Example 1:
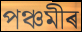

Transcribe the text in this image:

পঞ্চমীৰ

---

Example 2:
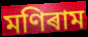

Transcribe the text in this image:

মণিৰাম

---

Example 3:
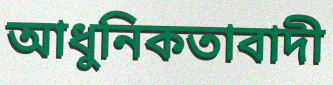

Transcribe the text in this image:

আধুনিকতাবাদী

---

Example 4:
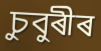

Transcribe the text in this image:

চুবুৰীৰ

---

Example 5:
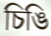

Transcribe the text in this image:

চিঙি